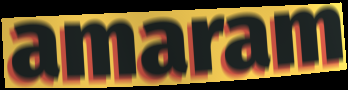
amaram